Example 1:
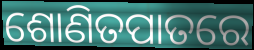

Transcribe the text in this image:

ଶୋଣିତପାତରେ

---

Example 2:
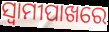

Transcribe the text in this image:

ସ୍ୱାମୀପାଖରେ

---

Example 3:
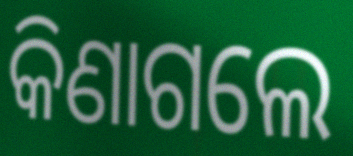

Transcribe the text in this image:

କିଣାଗଲେ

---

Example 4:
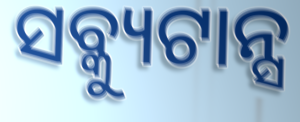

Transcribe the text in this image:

ସବ୍କ୍ୟୁଟାନ୍ସ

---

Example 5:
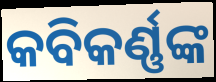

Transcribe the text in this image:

କବିକର୍ଣ୍ଣଙ୍କ